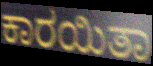
ಕಾರಯಿತಾ